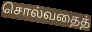
சொல்வதைத்